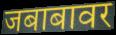
जबाबावर